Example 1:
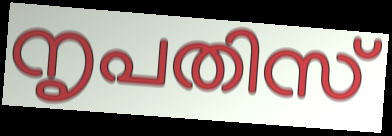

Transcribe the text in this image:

നൃപതിസ്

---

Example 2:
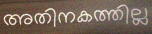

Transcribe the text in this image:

അതിനകത്തില്ല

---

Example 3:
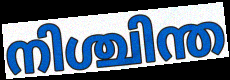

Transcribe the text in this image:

നിശ്ചിന്ത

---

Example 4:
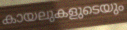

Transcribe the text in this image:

കായലുകളുടെയും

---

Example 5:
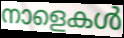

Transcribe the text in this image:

നാളെകൾ